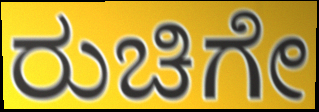
ರುಚಿಗೇ